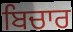
ਬਿਚਾਰ